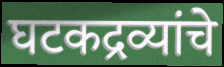
घटकद्रव्यांचे